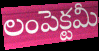
లంపెక్టమీ